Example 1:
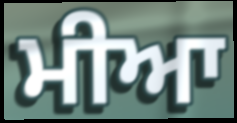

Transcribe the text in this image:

ਮੀਆ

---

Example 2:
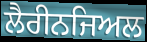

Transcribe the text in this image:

ਲੈਰੀਨਜਿਅਲ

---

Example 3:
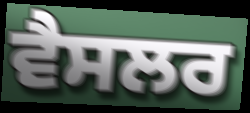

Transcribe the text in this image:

ਵੈਸਲਰ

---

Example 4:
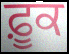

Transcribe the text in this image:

ਫ਼ੂਕ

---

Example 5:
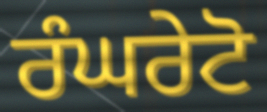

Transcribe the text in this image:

ਰੰਘਰੇਟੋ